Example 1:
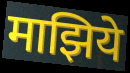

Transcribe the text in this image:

माझिये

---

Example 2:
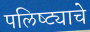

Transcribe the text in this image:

पलिष्ट्याचे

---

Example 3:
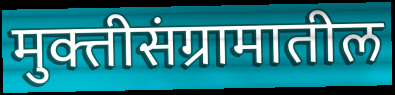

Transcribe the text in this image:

मुक्तीसंग्रामातील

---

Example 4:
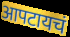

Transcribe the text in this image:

आपटायचं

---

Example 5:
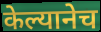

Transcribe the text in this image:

केल्यानेच